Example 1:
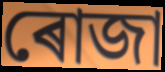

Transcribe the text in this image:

ৰোজা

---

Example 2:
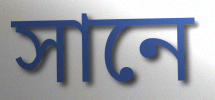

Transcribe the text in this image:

সানে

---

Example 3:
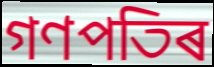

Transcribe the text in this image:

গণপতিৰ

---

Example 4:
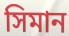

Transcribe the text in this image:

সিমান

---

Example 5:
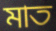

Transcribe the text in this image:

মাত